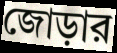
জোড়ার